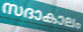
സദാകാലം